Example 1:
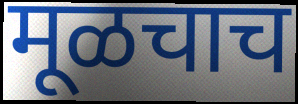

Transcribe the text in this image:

मूळचाच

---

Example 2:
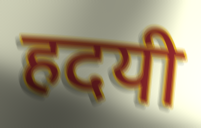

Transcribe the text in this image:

हदयी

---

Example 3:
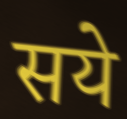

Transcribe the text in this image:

सये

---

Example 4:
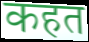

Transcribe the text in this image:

कहत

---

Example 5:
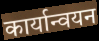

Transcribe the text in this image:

कार्यान्वयन